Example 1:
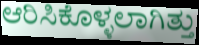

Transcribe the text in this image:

ಆರಿಸಿಕೊಳ್ಳಲಾಗಿತ್ತು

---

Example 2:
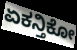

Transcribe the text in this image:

ಏಕನ್ತಿಕೋ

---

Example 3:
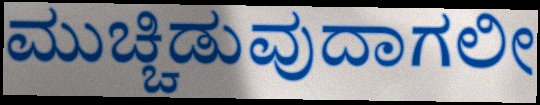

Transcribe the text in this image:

ಮುಚ್ಚಿಡುವುದಾಗಲೀ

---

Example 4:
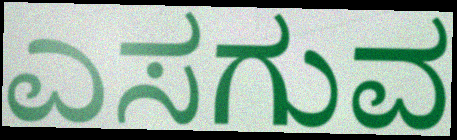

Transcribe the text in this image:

ಎಸಗುವ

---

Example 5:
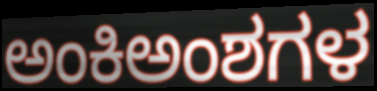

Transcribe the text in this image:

ಅಂಕಿಅಂಶಗಳ